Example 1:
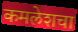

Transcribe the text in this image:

कमलेशचा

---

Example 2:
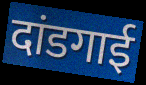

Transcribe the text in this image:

दांडगाई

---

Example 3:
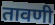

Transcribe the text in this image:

तावणी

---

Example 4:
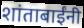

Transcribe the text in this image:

शांताबाईंनी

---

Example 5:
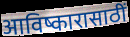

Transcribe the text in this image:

आविष्कारासाठीं